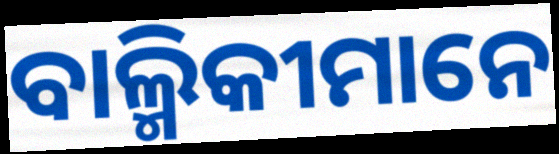
ବାଲ୍ମିକୀମାନେ